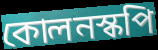
কোলনস্কপি